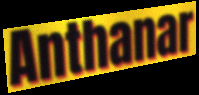
Anthanar